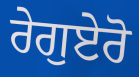
ਰੇਗੁਏਰੋ